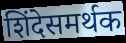
शिंदेसमर्थक